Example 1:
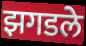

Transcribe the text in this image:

झगडले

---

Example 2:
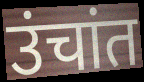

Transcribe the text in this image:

उंचांत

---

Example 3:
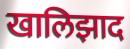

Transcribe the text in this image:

खालिझाद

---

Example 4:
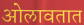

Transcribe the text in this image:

ओलावतात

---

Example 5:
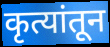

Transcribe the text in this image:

कृत्यांतून